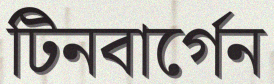
টিনবার্গেন